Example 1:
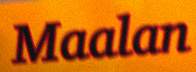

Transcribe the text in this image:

Maalan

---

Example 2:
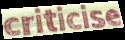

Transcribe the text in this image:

criticise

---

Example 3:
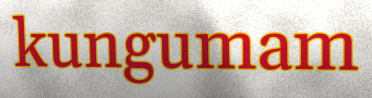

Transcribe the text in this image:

kungumam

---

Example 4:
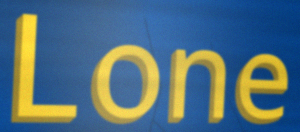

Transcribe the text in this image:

Lone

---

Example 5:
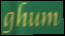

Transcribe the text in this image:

ghum